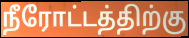
நீரோட்டத்திற்கு